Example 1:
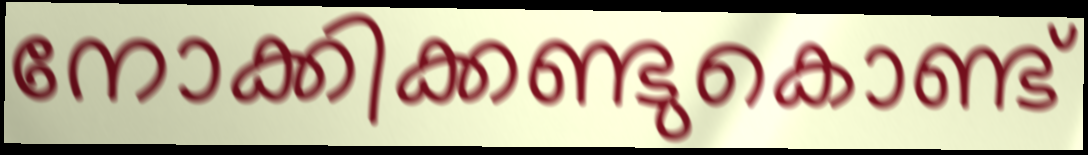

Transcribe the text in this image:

നോക്കിക്കണ്ടുകൊണ്ട്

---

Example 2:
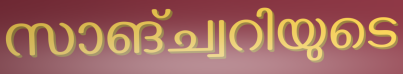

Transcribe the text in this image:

സാങ്ച്വറിയുടെ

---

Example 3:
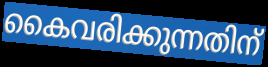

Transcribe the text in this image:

കൈവരിക്കുന്നതിന്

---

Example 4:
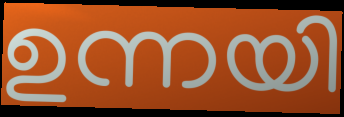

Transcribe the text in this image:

ഉന്നയി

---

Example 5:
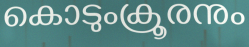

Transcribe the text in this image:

കൊടുംക്രൂരനും